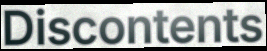
Discontents